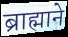
ब्राह्माने